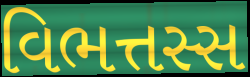
વિભત્તસ્સ